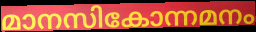
മാനസികോന്നമനം